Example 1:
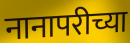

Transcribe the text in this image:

नानापरीच्या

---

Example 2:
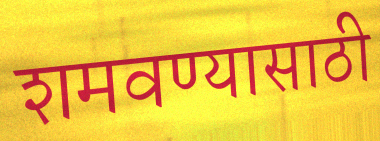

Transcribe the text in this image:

शमवण्यासाठी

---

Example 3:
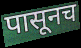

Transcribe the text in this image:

पासूनच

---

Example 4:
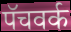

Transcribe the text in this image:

पॅचवर्क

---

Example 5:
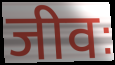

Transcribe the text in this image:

जीवः